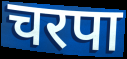
चरपा